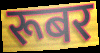
रूबर